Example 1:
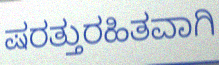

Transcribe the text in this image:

ಷರತ್ತುರಹಿತವಾಗಿ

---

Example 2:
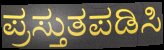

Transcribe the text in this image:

ಪ್ರಸ್ತುತಪಡಿಸಿ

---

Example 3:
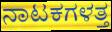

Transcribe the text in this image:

ನಾಟಕಗಳತ್ತ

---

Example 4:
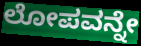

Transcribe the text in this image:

ಲೋಪವನ್ನೇ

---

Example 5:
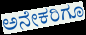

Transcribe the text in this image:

ಅನೇಕರಿಗೂ